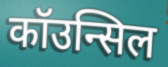
कॉउन्सिल